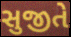
સુજીતે